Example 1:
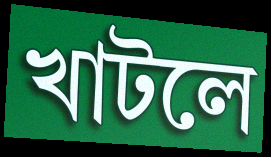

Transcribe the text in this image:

খাটলে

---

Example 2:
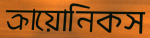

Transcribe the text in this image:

ক্রায়োনিকস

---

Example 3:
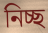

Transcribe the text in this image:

নিচ্ছ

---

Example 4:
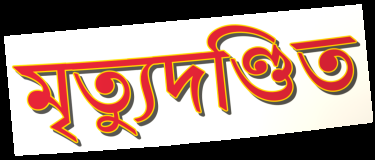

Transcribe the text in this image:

মৃত্যুদণ্ডিত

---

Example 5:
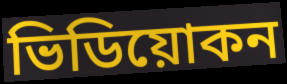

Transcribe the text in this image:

ভিডিয়োকন